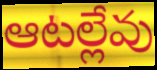
ఆటల్లేవు